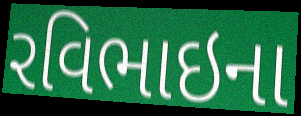
રવિભાઇના